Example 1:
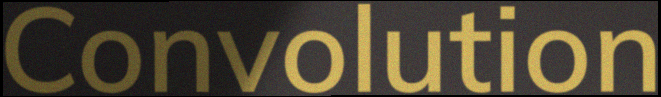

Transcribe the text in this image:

Convolution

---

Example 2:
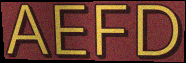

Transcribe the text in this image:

AEFD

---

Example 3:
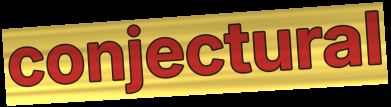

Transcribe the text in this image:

conjectural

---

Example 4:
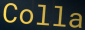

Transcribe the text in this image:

Colla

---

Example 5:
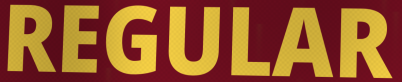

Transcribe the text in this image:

REGULAR